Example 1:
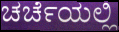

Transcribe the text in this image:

ಚರ್ಚೆಯಲ್ಲಿ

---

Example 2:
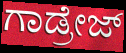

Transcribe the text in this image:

ಗಾಡ್ರೇಜ್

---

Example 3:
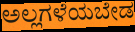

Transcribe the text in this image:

ಅಲ್ಲಗಳೆಯಬೇಡ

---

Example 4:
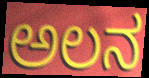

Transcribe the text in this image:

ಅಲನ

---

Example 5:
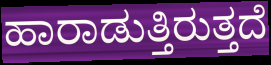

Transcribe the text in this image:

ಹಾರಾಡುತ್ತಿರುತ್ತದೆ